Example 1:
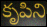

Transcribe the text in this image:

కృపిని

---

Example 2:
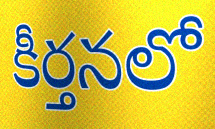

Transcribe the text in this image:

కీర్తనలో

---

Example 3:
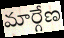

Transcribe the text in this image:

మార్గేణ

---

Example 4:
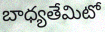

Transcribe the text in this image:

బాధ్యతేమిటో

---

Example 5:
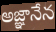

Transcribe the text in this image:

అజ్ఞానేన